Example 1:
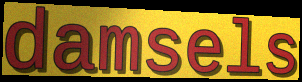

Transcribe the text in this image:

damsels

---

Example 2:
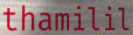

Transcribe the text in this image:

thamilil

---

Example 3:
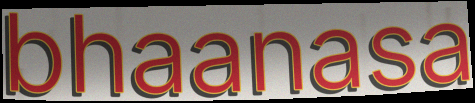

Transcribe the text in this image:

bhaanasa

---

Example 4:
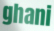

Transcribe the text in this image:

ghani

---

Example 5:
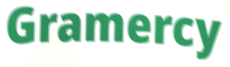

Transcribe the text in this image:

Gramercy